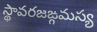
స్థావరజఙ్గమస్య